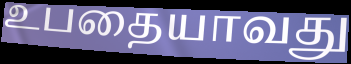
உபதையாவது